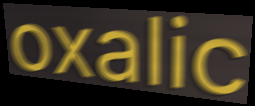
oxalic